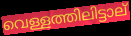
വെള്ളത്തിലിട്ടാല്